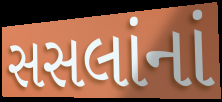
સસલાંનાં